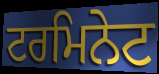
ਟਰਮਿਨੇਟ